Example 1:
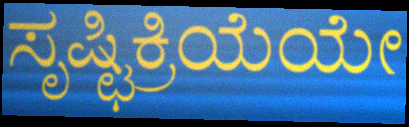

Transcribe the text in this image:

ಸೃಷ್ಟಿಕ್ರಿಯೆಯೇ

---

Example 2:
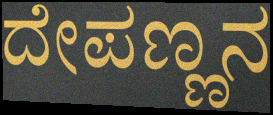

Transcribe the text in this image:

ದೇಪಣ್ಣನ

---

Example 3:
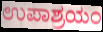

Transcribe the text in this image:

ಉಪಾಶ್ರಯಂ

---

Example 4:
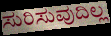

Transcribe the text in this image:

ಸುರಿಸುವುದಿಲ್ಲ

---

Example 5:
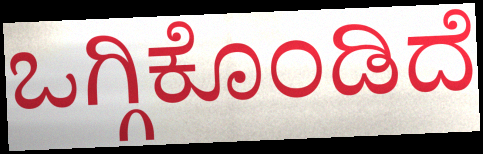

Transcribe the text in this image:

ಒಗ್ಗಿಕೊಂಡಿದೆ